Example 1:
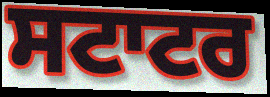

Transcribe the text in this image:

ਸਟਾਟਰ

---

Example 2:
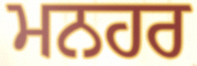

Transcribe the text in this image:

ਮਨਹਰ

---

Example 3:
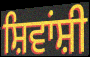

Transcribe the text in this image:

ਸ਼ਿਵਾਂਸ਼ੀ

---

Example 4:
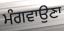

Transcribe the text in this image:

ਮੰਗਵਾਉਣਾ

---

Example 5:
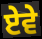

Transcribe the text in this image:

ਏਵੇ